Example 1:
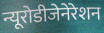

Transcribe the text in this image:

न्यूरोडीजेनेरेशन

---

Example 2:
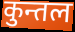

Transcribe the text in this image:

कुन्तल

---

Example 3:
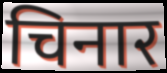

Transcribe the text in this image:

चिनार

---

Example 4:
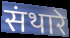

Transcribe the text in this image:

संथारे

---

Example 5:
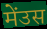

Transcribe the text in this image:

मेंउस